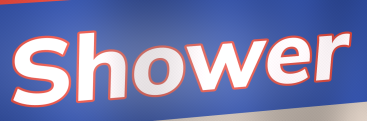
Shower